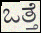
ಒತ್ತೆ